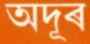
অদূৰ